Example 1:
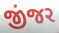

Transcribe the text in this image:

જીંજર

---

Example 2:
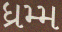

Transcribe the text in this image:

ધ્રમ્મ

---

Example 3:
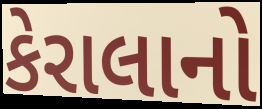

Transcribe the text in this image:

કેરાલાનો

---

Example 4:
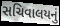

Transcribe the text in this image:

સચિવાલયનું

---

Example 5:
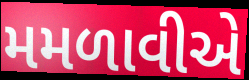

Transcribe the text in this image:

મમળાવીએ